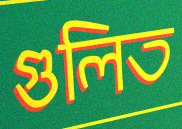
গুলিত